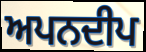
ਅਪਨਦੀਪ